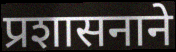
प्रशासनाने